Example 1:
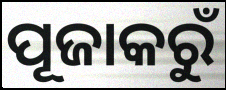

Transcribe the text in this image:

ପୂଜାକରୁଁ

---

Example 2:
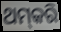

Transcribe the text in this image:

ଥମ୍‌କରି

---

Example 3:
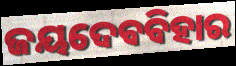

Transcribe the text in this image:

ଜୟଦେବବିହାର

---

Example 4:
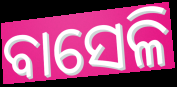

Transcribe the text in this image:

ବାସେଳି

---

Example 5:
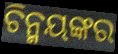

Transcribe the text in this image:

ଚିନ୍ମୟଙ୍କର